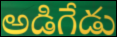
అడిగేడు